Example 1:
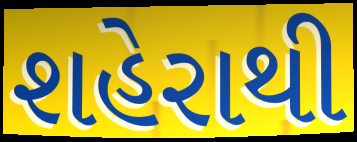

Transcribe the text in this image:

શહેરાથી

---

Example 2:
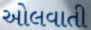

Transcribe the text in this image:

ઓલવાતી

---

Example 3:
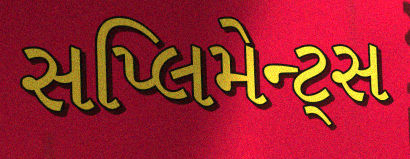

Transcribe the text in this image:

સપ્લિમેન્ટ્સ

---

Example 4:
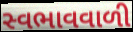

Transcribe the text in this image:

સ્વભાવવાળી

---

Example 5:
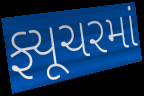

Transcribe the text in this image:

ફ્યૂચરમાં